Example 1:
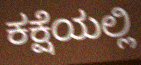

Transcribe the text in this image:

ಕಕ್ಷೆಯಲ್ಲಿ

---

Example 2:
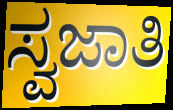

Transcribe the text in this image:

ಸ್ವಜಾತಿ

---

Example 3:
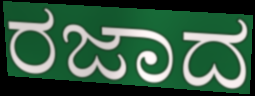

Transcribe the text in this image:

ರಜಾದ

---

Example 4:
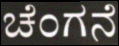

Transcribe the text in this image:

ಚೆಂಗನೆ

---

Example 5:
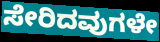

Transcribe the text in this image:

ಸೇರಿದವುಗಳೇ